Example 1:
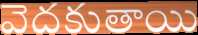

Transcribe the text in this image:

వెదకుతాయి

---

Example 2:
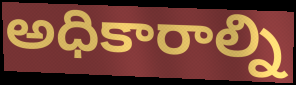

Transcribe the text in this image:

అధికారాల్ని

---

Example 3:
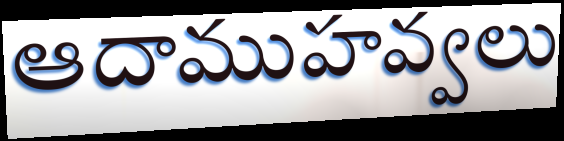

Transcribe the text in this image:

ఆదాముహవ్వలు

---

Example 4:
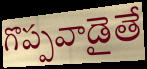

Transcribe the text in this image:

గొప్పవాడైతే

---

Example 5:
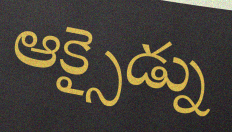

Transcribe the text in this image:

ఆక్సైడ్ను